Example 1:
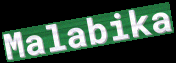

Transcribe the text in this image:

Malabika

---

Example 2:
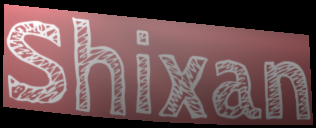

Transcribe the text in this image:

Shixan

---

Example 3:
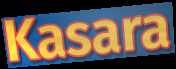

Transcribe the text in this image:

Kasara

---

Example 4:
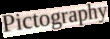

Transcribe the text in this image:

Pictography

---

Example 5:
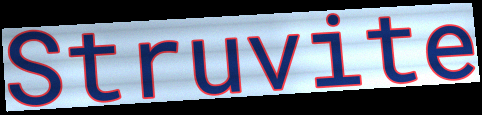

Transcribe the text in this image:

Struvite